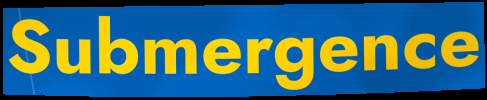
Submergence